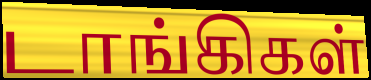
டாங்கிகள்